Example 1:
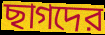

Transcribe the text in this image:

ছাগদের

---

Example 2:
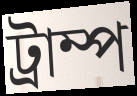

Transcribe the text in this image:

ট্রাম্প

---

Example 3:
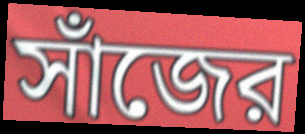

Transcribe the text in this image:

সাঁজের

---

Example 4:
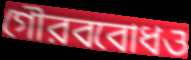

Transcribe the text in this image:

গৌরববোধও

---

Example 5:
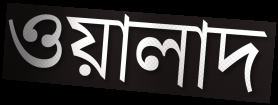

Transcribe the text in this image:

ওয়ালাদ